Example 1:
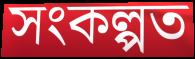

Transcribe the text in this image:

সংকল্পত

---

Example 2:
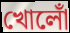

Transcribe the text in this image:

খোলোঁ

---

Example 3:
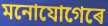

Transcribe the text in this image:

মনোযোগেৰে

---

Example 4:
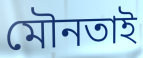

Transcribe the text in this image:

মৌনতাই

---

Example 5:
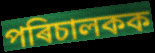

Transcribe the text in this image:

পৰিচালকক